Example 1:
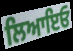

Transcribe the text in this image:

ਲਿਆਇਓ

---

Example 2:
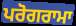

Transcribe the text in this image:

ਪਰੋਗਰਾਮਾ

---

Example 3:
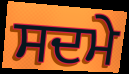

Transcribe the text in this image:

ਸਦਮੇ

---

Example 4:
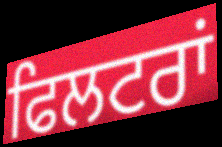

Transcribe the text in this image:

ਫਿਲਟਰਾਂ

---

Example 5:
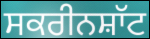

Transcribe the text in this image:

ਸਕਰੀਨਸ਼ਾੱਟ